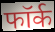
फॉर्क